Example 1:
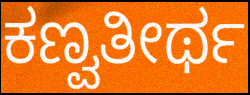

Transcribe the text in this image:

ಕಣ್ವತೀರ್ಥ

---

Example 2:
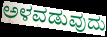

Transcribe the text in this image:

ಅಳವಡುವುದು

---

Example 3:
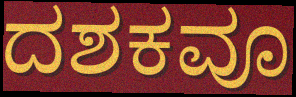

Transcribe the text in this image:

ದಶಕವೂ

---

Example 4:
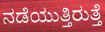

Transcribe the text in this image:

ನಡೆಯುತ್ತಿರುತ್ತೆ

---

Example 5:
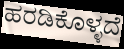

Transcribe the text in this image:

ಹರಡಿಕೊಳ್ಳದೆ